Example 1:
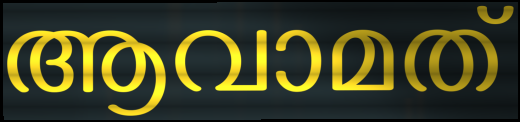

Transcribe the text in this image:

ആവാമത്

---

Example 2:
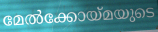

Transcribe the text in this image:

മേൽക്കോയ്മയുടെ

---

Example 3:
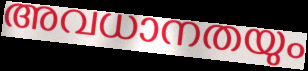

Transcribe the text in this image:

അവധാനതയും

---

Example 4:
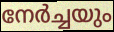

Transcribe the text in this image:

നേർച്ചയും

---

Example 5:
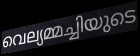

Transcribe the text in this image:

വെല്യമ്മച്ചിയുടെ